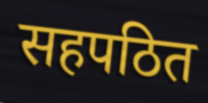
सहपठित